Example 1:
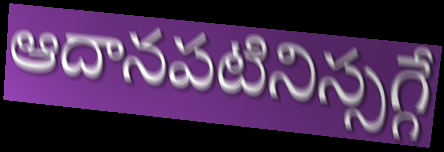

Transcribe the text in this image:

ఆదానపటినిస్సగ్గే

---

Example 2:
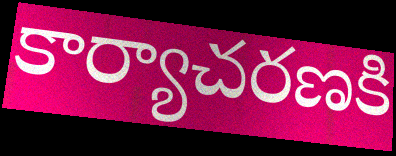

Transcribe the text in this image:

కార్యాచరణకి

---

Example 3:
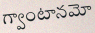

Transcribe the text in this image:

గ్వాంటానమో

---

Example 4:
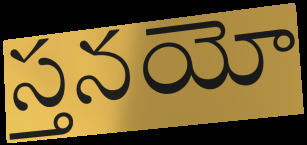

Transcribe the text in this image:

స్తనయో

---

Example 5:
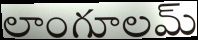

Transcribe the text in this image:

లాంగూలమ్